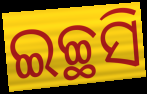
ଇଚ୍ଛସି